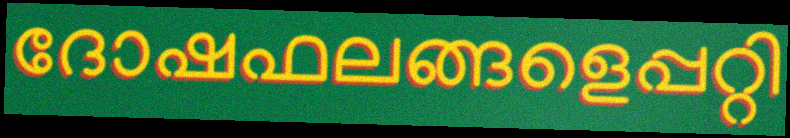
ദോഷഫലങ്ങളെപ്പറ്റി